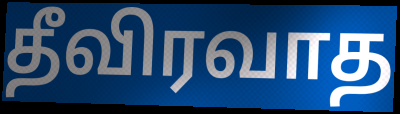
தீவிரவாத